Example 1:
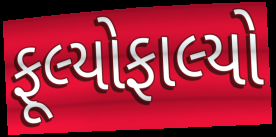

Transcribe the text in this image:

ફૂલ્યોફાલ્યો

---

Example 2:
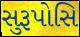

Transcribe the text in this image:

સુરૂપોસિ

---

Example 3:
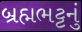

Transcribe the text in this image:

બ્રહ્મભટ્ટનું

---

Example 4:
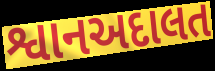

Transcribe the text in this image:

શ્વાનઅદાલત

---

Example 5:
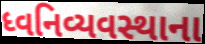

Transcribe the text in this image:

ધ્વનિવ્યવસ્થાના